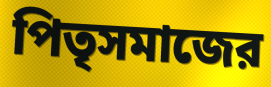
পিতৃসমাজের